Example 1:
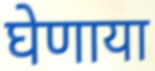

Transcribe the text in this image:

घेणाया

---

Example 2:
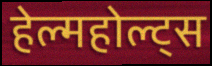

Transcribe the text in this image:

हेल्महोल्ट्स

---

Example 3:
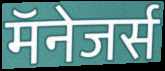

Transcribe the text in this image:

मॅनेजर्स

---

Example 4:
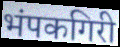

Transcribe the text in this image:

भंपकगिरी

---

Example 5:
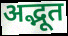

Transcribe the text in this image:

अद्भूत